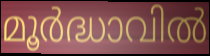
മൂർദ്ധാവിൽ